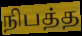
நிபத்த